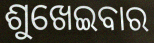
ଶୁଖେଇବାର